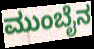
ಮುಂಬೈನ